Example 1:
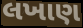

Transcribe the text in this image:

લખાણ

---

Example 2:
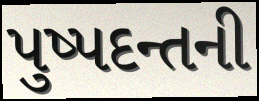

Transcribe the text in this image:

પુષ્પદન્તની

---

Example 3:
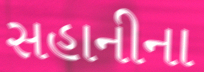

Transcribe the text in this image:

સહાનીના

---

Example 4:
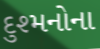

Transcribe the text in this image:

દુશ્મનોના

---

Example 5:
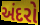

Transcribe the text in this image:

અંદરો